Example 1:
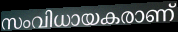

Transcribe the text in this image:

സംവിധായകരാണ്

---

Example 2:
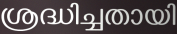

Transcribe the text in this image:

ശ്രദ്ധിച്ചതായി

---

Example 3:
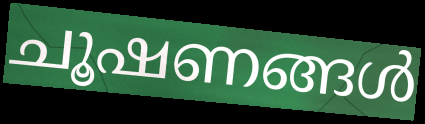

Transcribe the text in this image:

ചൂഷണങ്ങൾ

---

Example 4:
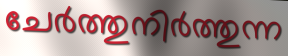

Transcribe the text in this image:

ചേർത്തുനിർത്തുന്ന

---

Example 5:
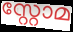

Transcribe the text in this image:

സ്റ്റോമ